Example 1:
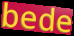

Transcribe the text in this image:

bede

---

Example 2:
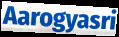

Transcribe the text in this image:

Aarogyasri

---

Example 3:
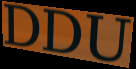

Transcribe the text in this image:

DDU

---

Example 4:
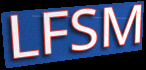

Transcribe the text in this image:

LFSM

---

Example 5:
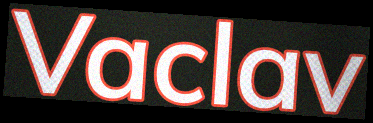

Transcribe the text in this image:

Vaclav